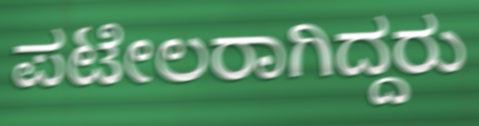
ಪಟೇಲರಾಗಿದ್ದರು